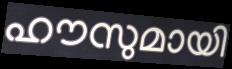
ഹൗസുമായി